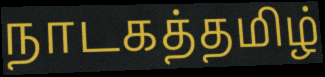
நாடகத்தமிழ்